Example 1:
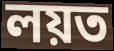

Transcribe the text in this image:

লয়ত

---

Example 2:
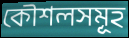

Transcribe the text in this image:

কৌশলসমূহ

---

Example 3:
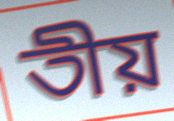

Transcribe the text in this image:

তীয়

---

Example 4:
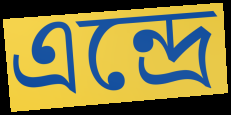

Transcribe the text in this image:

এন্দ্ৰে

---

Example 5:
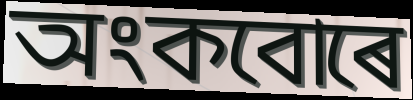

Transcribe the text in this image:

অংকবোৰে